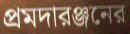
প্রমদারঞ্জনের